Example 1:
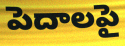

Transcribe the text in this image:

పెదాలపై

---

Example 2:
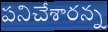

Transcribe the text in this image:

పనిచేశారన్న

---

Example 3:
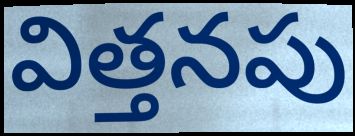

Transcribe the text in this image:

విత్తనపు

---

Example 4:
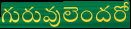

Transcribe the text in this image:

గురువులెందరో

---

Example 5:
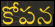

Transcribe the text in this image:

కోపన